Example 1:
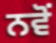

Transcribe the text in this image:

ਨਵੋਂ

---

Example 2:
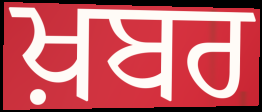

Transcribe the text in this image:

ਖ਼ਬਰ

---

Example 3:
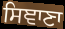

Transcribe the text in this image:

ਸਿਞਾਣਾ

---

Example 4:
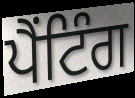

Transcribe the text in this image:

ਪੈਂਟਿੰਗ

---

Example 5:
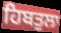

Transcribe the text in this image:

ਹਿਬਤੁਲਾ